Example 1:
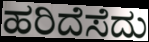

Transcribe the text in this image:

ಹರಿದೆಸೆದು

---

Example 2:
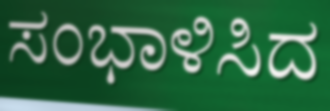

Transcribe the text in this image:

ಸಂಭಾಳಿಸಿದ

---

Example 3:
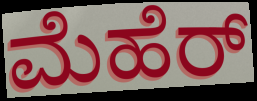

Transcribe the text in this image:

ಮೆಹೆರ್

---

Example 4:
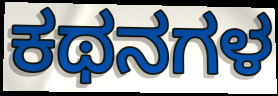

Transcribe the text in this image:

ಕಥನಗಳ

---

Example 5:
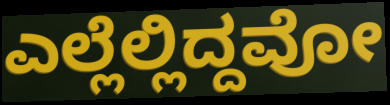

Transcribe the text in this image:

ಎಲ್ಲೆಲ್ಲಿದ್ದವೋ